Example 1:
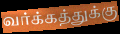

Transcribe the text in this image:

வர்க்கத்துக்கு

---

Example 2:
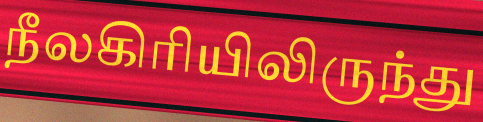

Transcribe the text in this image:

நீலகிரியிலிருந்து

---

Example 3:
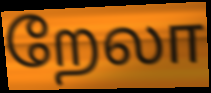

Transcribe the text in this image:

றேலா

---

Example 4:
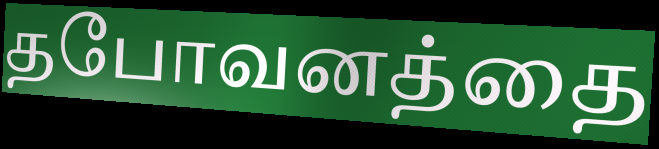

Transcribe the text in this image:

தபோவனத்தை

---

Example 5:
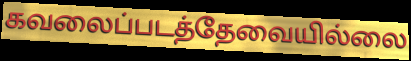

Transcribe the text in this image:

கவலைப்படத்தேவையில்லை